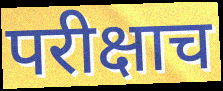
परीक्षाच